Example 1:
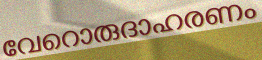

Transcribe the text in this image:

വേറൊരുദാഹരണം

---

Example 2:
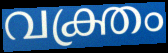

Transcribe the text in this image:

വക്ത്രം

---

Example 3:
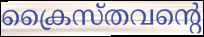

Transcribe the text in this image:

ക്രൈസ്തവന്റെ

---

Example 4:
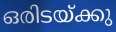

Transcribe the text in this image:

ഒരിടയ്ക്കു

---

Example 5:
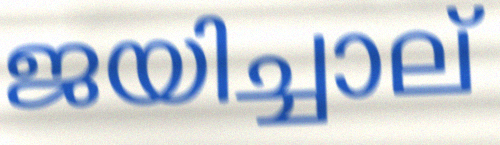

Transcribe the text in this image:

ജയിച്ചാല്